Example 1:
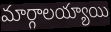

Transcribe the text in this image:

మార్గాలయ్యాయి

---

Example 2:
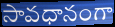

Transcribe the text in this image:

సావధానంగా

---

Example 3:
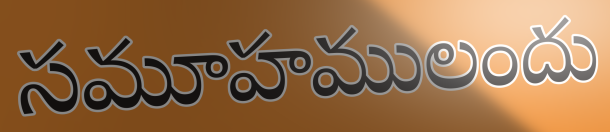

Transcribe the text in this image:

సమూహములందు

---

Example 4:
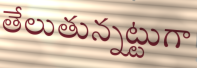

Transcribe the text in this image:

తేలుతున్నట్టుగా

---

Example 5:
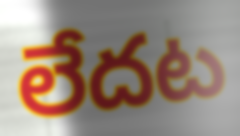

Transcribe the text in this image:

లేదట